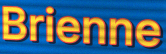
Brienne